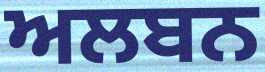
ਅਲਬਨ